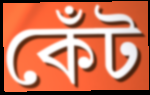
কেঁট